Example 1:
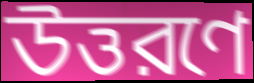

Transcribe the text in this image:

উত্তরণে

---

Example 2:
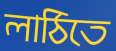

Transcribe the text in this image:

লাঠিতে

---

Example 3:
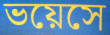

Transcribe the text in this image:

ভয়েসে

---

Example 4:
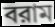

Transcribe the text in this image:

বরাম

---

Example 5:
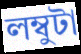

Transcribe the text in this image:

লম্বুটা